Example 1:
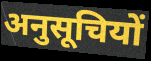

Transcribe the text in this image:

अनुसूचियों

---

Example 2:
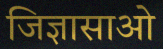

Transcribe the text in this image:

जिज्ञासाओ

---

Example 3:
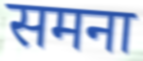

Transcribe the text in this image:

समना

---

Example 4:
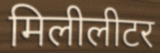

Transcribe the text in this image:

मिलीलीटर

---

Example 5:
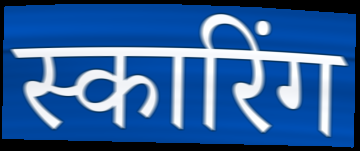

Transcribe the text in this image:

स्कारिंग